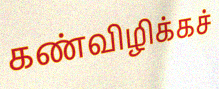
கண்விழிக்கச்